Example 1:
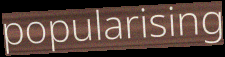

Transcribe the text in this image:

popularising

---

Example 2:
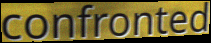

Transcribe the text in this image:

confronted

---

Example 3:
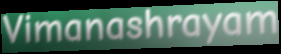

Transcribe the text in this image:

Vimanashrayam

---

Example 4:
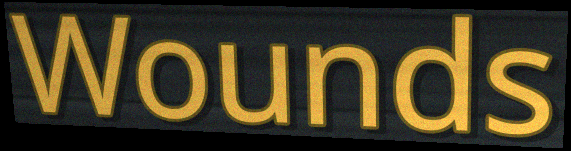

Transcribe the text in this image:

Wounds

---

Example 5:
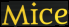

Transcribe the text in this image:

Mice